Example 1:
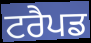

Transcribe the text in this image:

ਟਰੈਪਡ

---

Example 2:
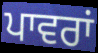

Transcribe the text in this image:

ਪਾਵਰਾਂ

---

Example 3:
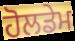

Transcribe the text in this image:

ਹੋਲਡੇਮ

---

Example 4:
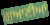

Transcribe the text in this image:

ਗੁਆਣੀਆਂ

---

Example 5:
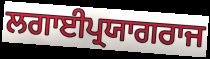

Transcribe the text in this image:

ਲਗਾਈਪ੍ਰਯਾਗਰਾਜ